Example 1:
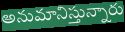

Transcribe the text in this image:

అనుమానిస్తున్నారు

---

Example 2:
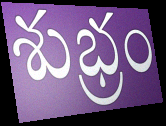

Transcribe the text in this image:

శుభ్రం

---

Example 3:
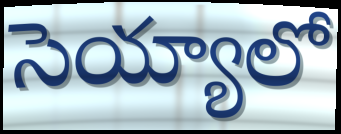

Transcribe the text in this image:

సెయ్యాలో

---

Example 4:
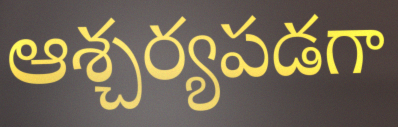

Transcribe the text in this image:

ఆశ్చర్యపడగా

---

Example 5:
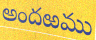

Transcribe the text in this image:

అందఱము